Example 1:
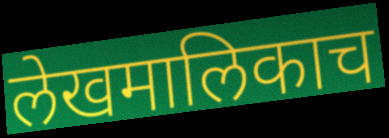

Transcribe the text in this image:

लेखमालिकाच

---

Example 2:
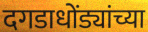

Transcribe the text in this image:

दगडाधोंड्यांच्या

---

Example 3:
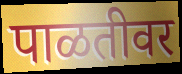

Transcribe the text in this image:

पाळतीवर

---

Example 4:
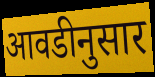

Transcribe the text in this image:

आवडीनुसार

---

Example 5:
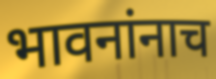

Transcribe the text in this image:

भावनांनाच